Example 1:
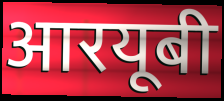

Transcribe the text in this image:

आरयूबी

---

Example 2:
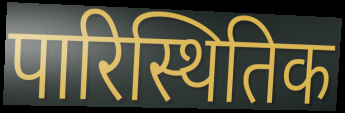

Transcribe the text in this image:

पारिस्थितिक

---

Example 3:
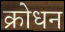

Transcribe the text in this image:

क्रोधन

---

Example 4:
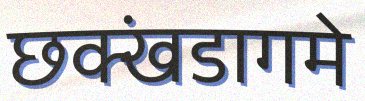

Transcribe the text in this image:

छक्खंडागमे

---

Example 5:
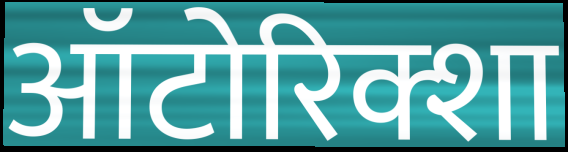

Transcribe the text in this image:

ऑटोरिक्‍शा